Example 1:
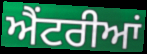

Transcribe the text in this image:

ਐਂਟਰੀਆਂ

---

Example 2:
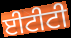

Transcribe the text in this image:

ਈਟੀਟੀ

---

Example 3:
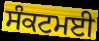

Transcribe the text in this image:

ਸੰਕਟਮਈ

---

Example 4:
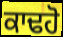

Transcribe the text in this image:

ਕਾਢਹੋ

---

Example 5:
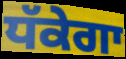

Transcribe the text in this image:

ਧੱਕੇਗਾ